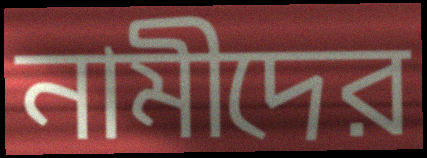
নামীদের